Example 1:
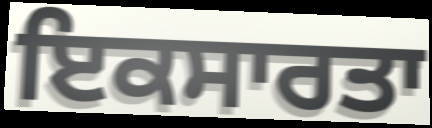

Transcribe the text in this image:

ਇਕਸਾਰਤਾ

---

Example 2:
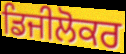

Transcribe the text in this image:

ਡਿਜੀਲੋਕਰ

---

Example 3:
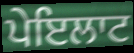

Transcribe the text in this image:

ਪੇਇਲਾਟ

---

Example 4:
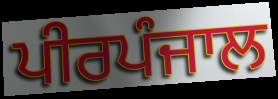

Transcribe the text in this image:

ਪੀਰਪੰਜਾਲ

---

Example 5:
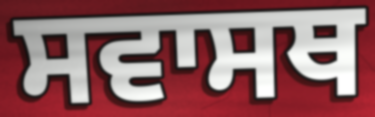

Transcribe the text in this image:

ਸਵਾਸਥ